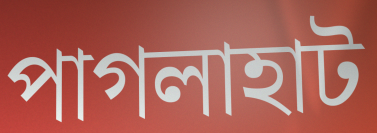
পাগলাহাট